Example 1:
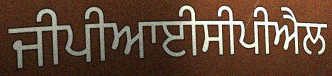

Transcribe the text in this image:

ਜੀਪੀਆਈਸੀਪੀਐਲ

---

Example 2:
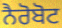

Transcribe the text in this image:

ਨੈਰੋਬੋਟ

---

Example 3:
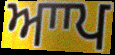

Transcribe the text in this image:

ਆਾਪ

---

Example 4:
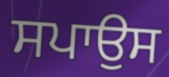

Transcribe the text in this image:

ਸਪਾਉਸ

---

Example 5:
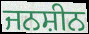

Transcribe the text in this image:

ਜਨਸ਼ੀਨ